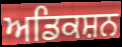
ਅਡਿਕਸ਼ਨ